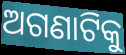
ଅଗଣାଟିକୁ